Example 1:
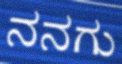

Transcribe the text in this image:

ನನಗು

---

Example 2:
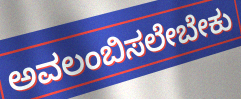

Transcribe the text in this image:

ಅವಲಂಬಿಸಲೇಬೇಕು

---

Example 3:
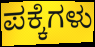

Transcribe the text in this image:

ಪಕ್ಕೆಗಳು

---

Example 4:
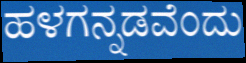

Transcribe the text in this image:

ಹಳಗನ್ನಡವೆಂದು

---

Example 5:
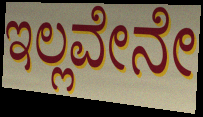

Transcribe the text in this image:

ಇಲ್ಲವೇನೇ